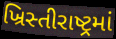
ખ્રિસ્તીરાષ્ટ્રમાં